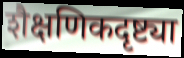
शैक्षणिकदृष्ट्या